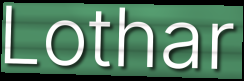
Lothar